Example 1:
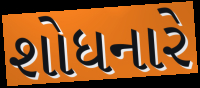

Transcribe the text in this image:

શોધનારે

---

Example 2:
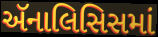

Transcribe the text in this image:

ઍનાલિસિસમાં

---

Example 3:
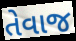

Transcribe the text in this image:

તેવાજ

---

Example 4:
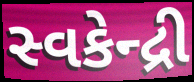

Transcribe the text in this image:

સ્વકેન્દ્રી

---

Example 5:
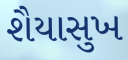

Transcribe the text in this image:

શૈયાસુખ